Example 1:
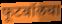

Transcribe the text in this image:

फूटबॉलचा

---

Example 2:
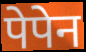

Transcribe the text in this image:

पेपेन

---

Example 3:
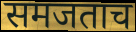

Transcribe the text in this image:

समजताच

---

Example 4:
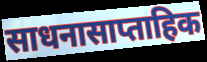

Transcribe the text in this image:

साधनासाप्ताहिक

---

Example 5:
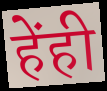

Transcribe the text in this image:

हेंही